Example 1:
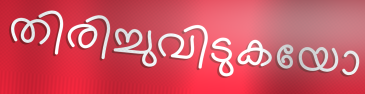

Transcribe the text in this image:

തിരിച്ചുവിടുകയോ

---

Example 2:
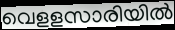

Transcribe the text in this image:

വെളളസാരിയിൽ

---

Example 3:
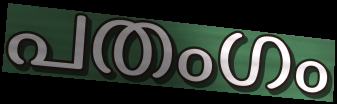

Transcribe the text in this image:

പതംഗം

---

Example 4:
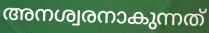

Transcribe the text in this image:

അനശ്വരനാകുന്നത്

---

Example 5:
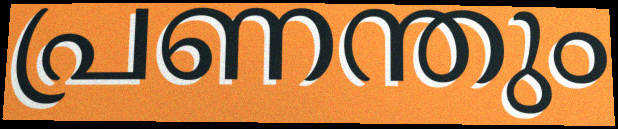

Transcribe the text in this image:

പ്രണന്തും